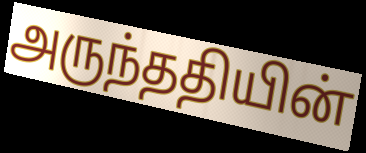
அருந்ததியின்